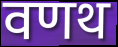
वणथ